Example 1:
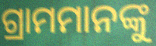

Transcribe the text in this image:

ଗ୍ରାମମାନଙ୍କୁ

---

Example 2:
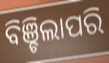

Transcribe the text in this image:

ବିଞ୍ଚିଲାପରି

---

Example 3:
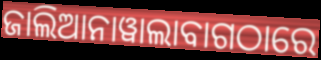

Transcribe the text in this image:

ଜାଲିଆନାୱାଲାବାଗଠାରେ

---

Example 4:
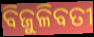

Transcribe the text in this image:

ବିଜୁଳିବତୀ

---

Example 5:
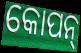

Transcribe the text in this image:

କୋପନ୍